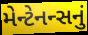
મેન્ટેનન્સનું